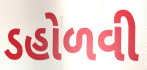
ડહોળવી